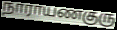
நாராயணகுரு